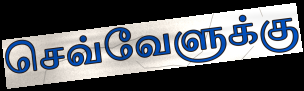
செவ்வேளுக்கு